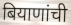
बियाणांची